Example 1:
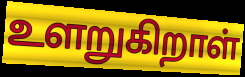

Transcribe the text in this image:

உளறுகிறாள்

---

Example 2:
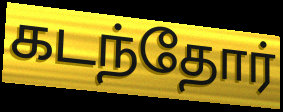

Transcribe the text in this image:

கடந்தோர்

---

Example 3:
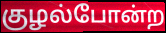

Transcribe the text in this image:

குழல்போன்ற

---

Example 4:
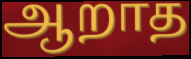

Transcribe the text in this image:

ஆறாத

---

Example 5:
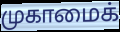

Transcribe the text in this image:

முகாமைக்